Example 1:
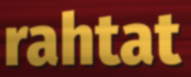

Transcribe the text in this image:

rahtat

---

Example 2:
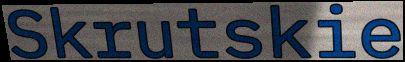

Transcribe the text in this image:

Skrutskie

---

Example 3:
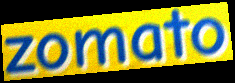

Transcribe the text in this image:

zomato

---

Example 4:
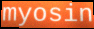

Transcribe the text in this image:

myosin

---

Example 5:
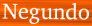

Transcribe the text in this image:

Negundo